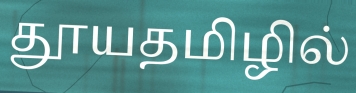
தூயதமிழில்